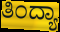
ತಿಂದ್ಯಾ